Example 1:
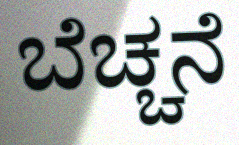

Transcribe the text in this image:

ಬೆಚ್ಚನೆ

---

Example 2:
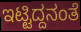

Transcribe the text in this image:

ಇಟ್ಟಿದ್ದನಂತೆ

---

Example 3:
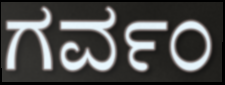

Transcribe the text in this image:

ಗರ್ವಂ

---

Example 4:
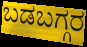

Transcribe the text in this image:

ಬಡಬಗ್ಗರ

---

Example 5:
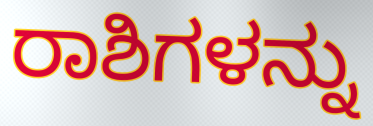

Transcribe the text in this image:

ರಾಶಿಗಳನ್ನು